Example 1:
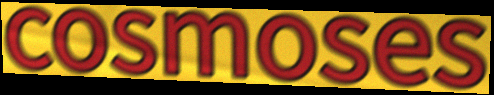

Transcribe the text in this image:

cosmoses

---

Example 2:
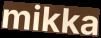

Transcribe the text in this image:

mikka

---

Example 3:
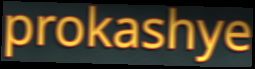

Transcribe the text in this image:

prokashye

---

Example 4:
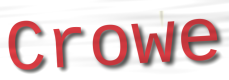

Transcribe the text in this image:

Crowe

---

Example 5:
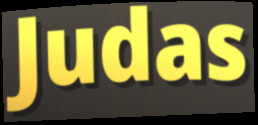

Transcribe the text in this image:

Judas